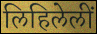
लिहिलेलीं